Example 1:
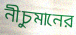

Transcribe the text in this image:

নীচুমানের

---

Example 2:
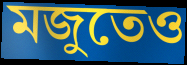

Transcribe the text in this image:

মজুতেও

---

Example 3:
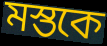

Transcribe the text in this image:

মস্তকে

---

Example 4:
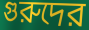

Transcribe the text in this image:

গুরুদের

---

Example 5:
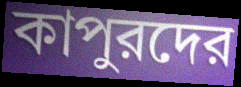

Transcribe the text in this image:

কাপুরদের